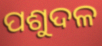
ପଶୁଦଳ